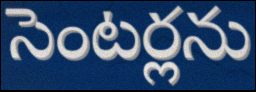
సెంటర్లను